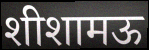
शीशामऊ